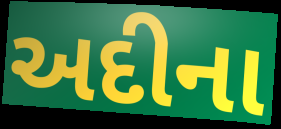
અદીના